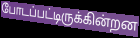
போடப்பட்டிருக்கின்றன